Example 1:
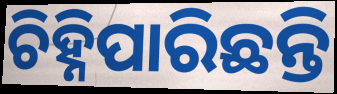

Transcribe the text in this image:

ଚିହ୍ନିପାରିଛନ୍ତି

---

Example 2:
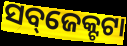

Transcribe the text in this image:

ସବ୍‌ଜେକ୍ଟଟା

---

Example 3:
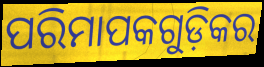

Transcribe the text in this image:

ପରିମାପକଗୁଡ଼ିକର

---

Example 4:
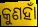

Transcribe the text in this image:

କୁଣହାଁ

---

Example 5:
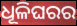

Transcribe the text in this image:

ଧୂଳିଘରର